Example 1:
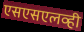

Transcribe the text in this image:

एसएसएलव्ही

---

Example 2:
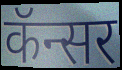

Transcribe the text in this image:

कॅन्सर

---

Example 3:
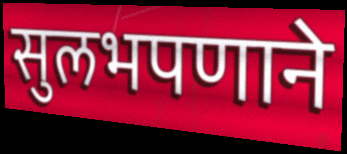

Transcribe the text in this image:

सुलभपणाने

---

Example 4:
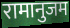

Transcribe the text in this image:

रामानुजम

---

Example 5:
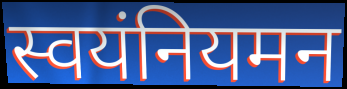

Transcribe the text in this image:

स्वयंनियमन